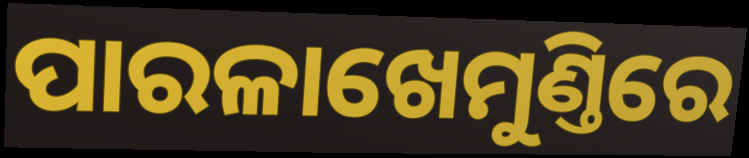
ପାରଳାଖେମୁଣ୍ତିରେ